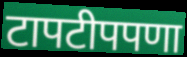
टापटीपपणा